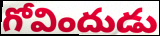
గోవిందుడు